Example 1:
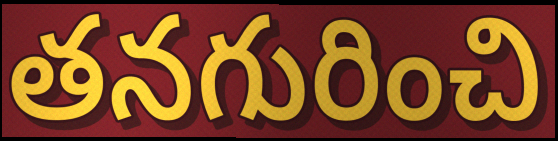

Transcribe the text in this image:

తనగురించి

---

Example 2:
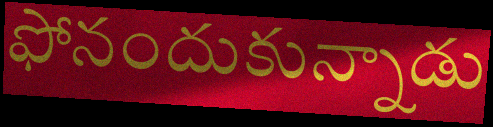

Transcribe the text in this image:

ఫోనందుకున్నాడు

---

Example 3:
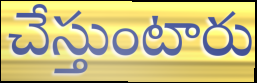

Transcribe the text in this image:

చేస్తుంటారు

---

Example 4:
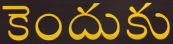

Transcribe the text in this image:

కెందుకు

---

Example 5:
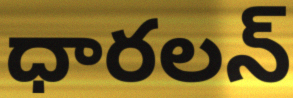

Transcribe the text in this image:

ధారలన్